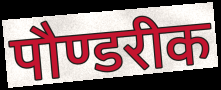
पौण्डरीक